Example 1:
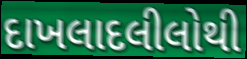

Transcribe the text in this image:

દાખલાદલીલોથી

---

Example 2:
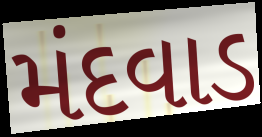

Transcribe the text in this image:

મંદવાડ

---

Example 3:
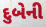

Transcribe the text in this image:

દુબેની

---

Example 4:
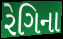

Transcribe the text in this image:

રેગિના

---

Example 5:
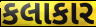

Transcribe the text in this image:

કલાકાર